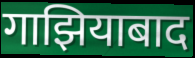
गाझियाबाद